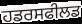
ਹਡਰਸਫੀਲਡ